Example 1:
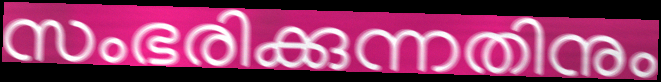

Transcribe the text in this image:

സംഭരിക്കുന്നതിനും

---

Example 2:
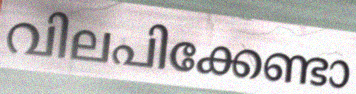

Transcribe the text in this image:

വിലപിക്കേണ്ടാ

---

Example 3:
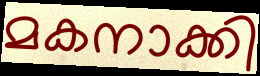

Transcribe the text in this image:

മകനാക്കി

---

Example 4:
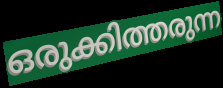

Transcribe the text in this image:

ഒരുക്കിത്തരുന്ന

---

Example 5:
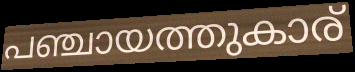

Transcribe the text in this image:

പഞ്ചായത്തുകാര്